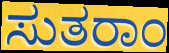
ಸುತರಾಂ